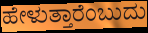
ಹೇಳುತ್ತಾರೆಂಬುದು